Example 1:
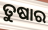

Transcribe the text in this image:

ତୁଷାର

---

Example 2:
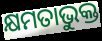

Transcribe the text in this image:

କ୍ଷମତାଭୁକ୍ତ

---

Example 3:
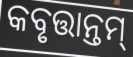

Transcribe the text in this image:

କବୃତ୍ତାନ୍ତମ୍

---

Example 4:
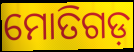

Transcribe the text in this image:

ମୋତିଗଡ଼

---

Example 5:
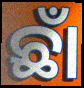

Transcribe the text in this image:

ଛାଁ